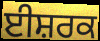
ਈਸ਼ਰਕ